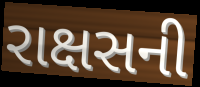
રાક્ષસની